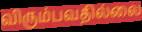
விரும்பவதில்லை